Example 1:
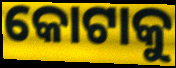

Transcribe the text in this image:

କୋଟାକୁ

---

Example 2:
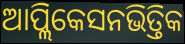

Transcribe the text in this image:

ଆପ୍ଲିକେସନଭିତ୍ତିକ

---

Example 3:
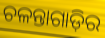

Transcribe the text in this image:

ଚଳନ୍ତାଗାଡ଼ିର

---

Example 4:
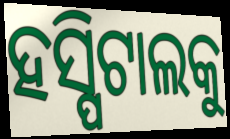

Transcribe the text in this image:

ହସ୍ପିଟାଲକୁ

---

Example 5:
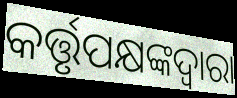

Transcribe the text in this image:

କର୍ତ୍ତୃପକ୍ଷଙ୍କଦ୍ଵାରା